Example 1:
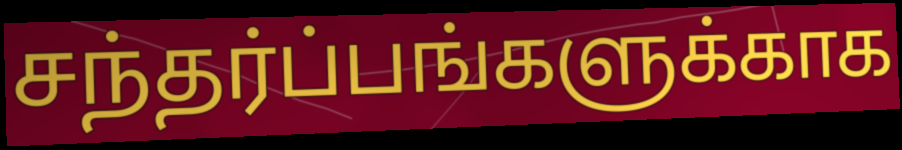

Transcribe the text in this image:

சந்தர்ப்பங்களுக்காக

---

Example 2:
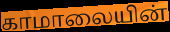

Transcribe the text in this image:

காமாலையின்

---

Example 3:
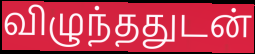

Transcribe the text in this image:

விழுந்ததுடன்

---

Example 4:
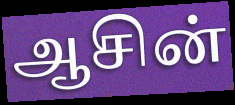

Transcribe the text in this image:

ஆசின்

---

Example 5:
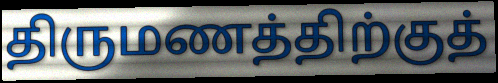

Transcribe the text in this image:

திருமணத்திற்குத்